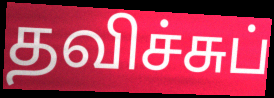
தவிச்சுப்